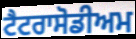
ਟੈਟਰਾਸੋਡੀਅਮ